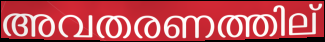
അവതരണത്തില്